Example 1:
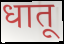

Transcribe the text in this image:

धातू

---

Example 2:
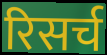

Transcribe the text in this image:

रिसर्च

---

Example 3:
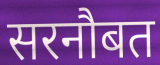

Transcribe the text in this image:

सरनौबत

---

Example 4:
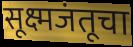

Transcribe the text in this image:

सूक्ष्मजंतूचा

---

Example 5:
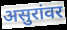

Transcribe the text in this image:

असुरांवर